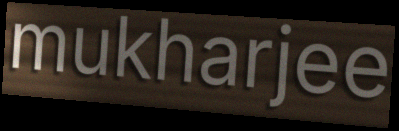
mukharjee